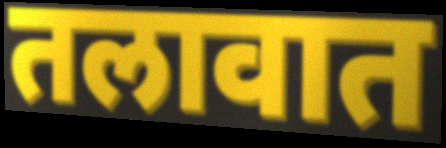
तलावात